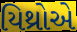
યિથ્રોએ